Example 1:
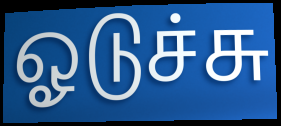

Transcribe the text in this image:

ஓடுச்சு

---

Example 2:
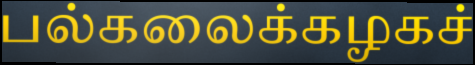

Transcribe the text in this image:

பல்கலைக்கழகச்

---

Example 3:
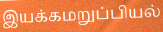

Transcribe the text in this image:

இயக்கமறுப்பியல்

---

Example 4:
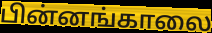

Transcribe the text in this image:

பின்னங்காலை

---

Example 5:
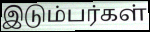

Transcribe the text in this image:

இடும்பர்கள்